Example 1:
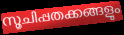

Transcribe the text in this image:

സൂചിപ്പതക്കങ്ങളും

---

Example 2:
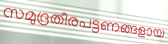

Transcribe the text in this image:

സമുദ്രതീരപട്ടണങ്ങളായ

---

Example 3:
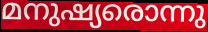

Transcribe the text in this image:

മനുഷ്യരൊന്നു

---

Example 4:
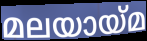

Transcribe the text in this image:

മലയായ്മ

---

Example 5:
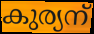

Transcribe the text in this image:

കുര്യന്